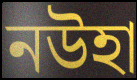
নউহা